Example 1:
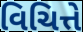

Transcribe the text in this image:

વિચિત્તે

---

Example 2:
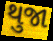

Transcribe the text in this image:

થુજા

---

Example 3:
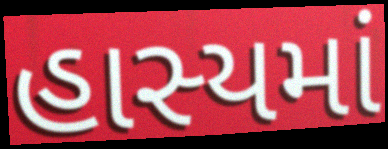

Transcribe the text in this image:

હાસ્યમાં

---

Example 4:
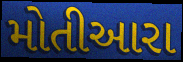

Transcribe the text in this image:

મોતીઆરા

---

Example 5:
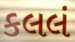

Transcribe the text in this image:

કલલં